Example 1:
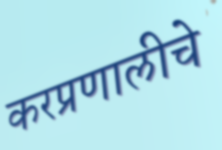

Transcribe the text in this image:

करप्रणालीचे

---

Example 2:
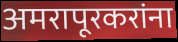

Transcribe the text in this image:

अमरापूरकरांना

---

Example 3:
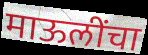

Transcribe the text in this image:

माऊलींचा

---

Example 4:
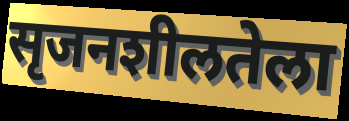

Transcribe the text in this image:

सृजनशीलतेला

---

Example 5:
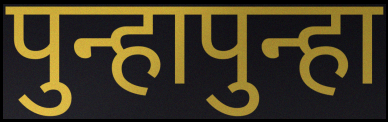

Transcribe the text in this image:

पुन्हापुन्हा